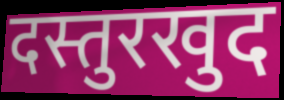
दस्तुरखुद